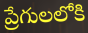
ప్రేగులలోకి